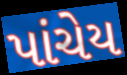
પાંચેય